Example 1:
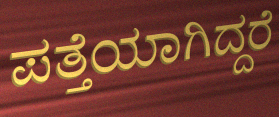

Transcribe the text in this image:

ಪತ್ತೆಯಾಗಿದ್ದರೆ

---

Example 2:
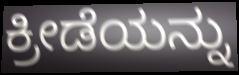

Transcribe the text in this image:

ಕ್ರೀಡೆಯನ್ನು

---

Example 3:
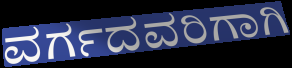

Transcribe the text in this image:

ವರ್ಗದವರಿಗಾಗಿ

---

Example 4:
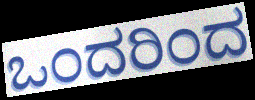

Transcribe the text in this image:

ಒಂದರಿಂದ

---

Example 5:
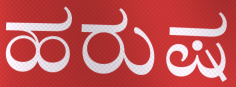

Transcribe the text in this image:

ಹರುಷ